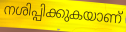
നശിപ്പിക്കുകയാണ്